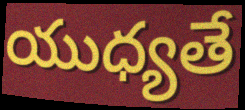
యుధ్యతే